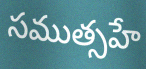
సముత్సహే